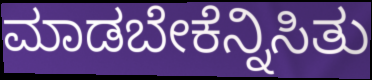
ಮಾಡಬೇಕೆನ್ನಿಸಿತು